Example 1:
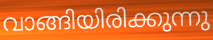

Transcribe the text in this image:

വാങ്ങിയിരിക്കുന്നു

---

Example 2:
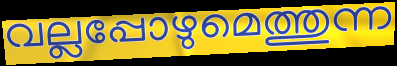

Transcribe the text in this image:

വല്ലപ്പോഴുമെത്തുന്ന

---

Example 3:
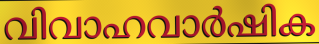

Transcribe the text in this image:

വിവാഹവാർഷിക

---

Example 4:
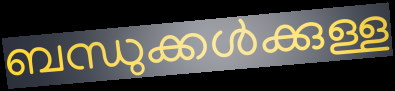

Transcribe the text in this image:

ബന്ധുക്കൾക്കുള്ള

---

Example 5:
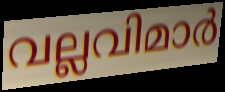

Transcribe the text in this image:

വല്ലവിമാർ